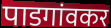
पाडगांवकर